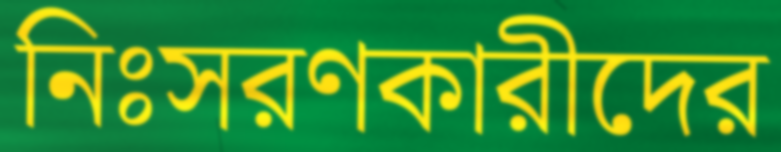
নিঃসরণকারীদের